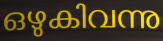
ഒഴുകിവന്നു